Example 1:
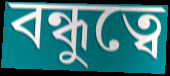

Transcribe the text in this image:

বন্ধুত্বে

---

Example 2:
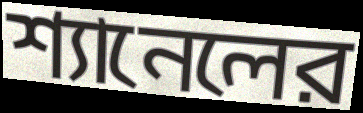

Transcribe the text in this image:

শ্যানেলের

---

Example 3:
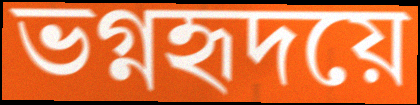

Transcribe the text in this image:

ভগ্নহৃদয়ে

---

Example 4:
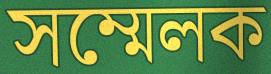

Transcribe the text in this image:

সম্মেলক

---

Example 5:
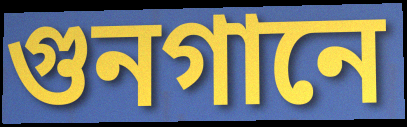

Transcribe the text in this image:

গুনগানে